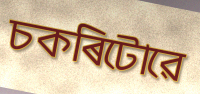
চকৰিটোৱে